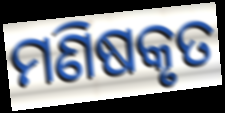
ମଣିଷକୃତ